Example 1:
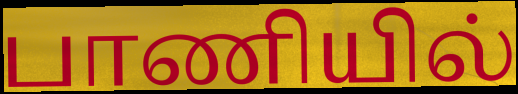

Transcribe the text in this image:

பாணியில்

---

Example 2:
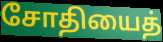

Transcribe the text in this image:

சோதியைத்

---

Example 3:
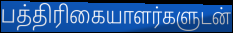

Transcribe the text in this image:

பத்திரிகையாளர்களுடன்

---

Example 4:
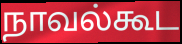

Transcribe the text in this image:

நாவல்கூட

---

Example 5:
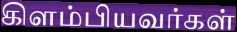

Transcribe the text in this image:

கிளம்பியவர்கள்